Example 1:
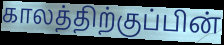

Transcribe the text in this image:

காலத்திற்குப்பின்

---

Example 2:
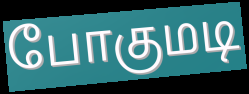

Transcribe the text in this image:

போகுமடி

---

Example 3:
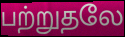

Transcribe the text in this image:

பற்றுதலே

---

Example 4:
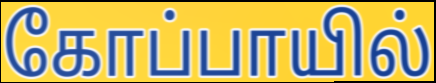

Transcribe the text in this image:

கோப்பாயில்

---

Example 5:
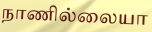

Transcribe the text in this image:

நாணில்லையா